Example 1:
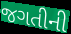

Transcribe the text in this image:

જગતીની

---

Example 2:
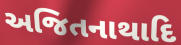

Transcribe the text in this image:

અજિતનાથાદિ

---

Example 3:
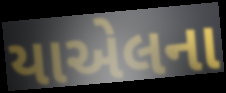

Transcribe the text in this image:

યાએલના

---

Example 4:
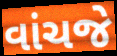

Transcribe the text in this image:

વાંચજે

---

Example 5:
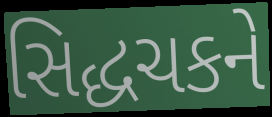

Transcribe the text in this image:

સિદ્ધચકને